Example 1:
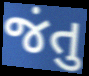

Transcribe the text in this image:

જંતુ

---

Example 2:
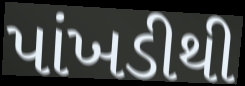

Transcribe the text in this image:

પાંખડીથી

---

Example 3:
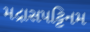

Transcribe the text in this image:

મદ્રાસપટ્ટિનમ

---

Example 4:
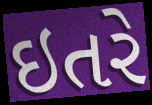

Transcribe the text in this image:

ઇતરે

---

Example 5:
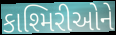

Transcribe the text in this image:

કાશ્મિરીઓને